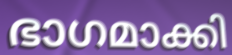
ഭാഗമാക്കി